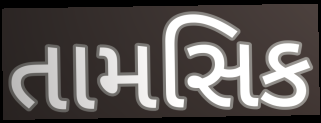
તામસિક